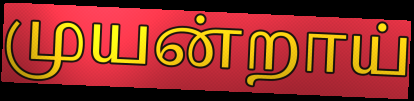
முயன்றாய்